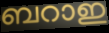
ബറാഇ